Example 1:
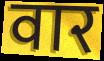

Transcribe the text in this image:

वार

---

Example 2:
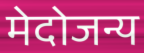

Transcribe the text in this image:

मेदोजन्य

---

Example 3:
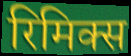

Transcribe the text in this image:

रिमिक्स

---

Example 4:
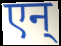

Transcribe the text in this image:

एन्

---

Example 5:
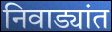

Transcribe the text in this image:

निवाड्यांत